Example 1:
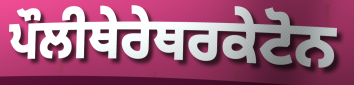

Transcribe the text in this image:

ਪੌਲੀਥੇਰੇਥਰਕੇਟੋਨ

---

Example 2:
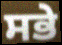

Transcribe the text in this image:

ਸਭੇ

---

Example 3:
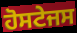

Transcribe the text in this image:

ਹੋਸਟੇਜਸ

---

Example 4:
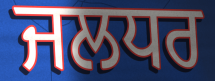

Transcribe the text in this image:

ਜਲਧਰ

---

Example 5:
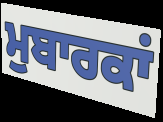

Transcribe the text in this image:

ਮੁਬਾਰਕਾਂ